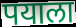
पयाला